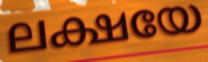
ലക്ഷയേ